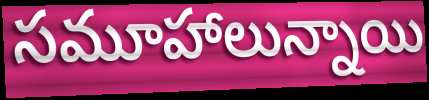
సమూహాలున్నాయి